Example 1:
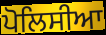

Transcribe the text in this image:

ਪੋਲਿਸੀਆ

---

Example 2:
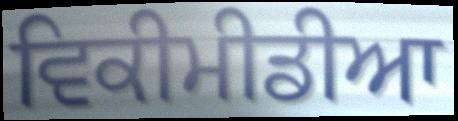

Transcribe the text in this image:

ਵਿਕੀਮੀਡੀਆ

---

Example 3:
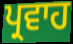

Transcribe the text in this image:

ਪ੍ਰਵਾਹ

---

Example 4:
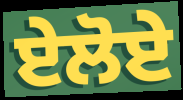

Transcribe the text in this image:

ਏਲੋਏ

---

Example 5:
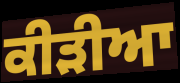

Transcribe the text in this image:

ਕੀੜੀਆ